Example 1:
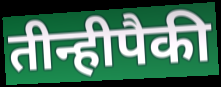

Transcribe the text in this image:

तीन्हीपैकी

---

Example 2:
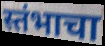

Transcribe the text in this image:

स्तंभाचा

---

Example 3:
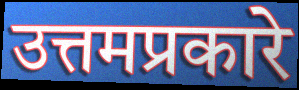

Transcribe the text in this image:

उत्तमप्रकारे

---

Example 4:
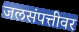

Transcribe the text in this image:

जलसंपत्तीवर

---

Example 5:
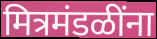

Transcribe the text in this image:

मित्रमंडळींना